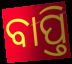
ବାପ୍ତି